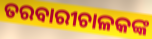
ତରବାରୀଚାଳକଙ୍କ